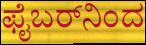
ಫೈಬರ್‌ನಿಂದ